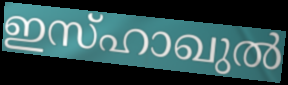
ഇസ്ഹാഖുൽ